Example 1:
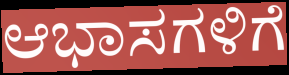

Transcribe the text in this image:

ಆಭಾಸಗಳಿಗೆ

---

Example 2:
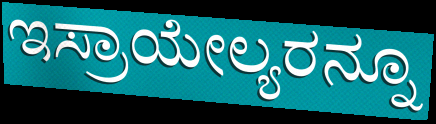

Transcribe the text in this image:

ಇಸ್ರಾಯೇಲ್ಯರನ್ನೂ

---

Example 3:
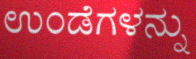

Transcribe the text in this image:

ಉಂಡೆಗಳನ್ನು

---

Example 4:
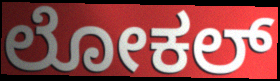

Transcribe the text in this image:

ಲೋಕಲ್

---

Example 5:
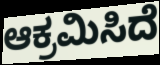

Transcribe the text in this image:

ಆಕ್ರಮಿಸಿದೆ